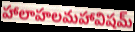
హాలాహలమహావిషమ్